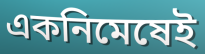
একনিমেষেই